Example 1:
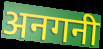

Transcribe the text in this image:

अनगनी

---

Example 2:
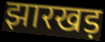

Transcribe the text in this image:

झारखड़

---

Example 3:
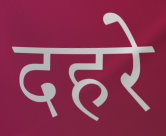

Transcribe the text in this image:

दहरे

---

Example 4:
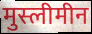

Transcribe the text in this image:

मुस्लीमीन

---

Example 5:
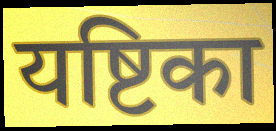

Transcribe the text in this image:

यष्टिका